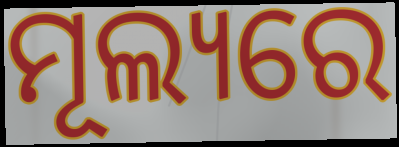
ମୂଲ୍ଯରେ